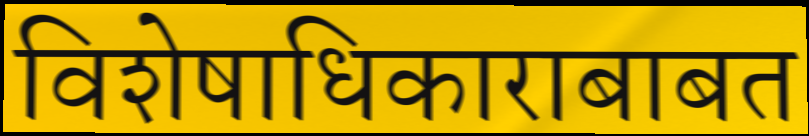
विशेषाधिकाराबाबत